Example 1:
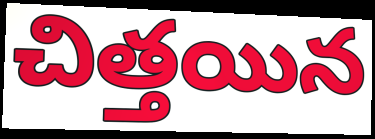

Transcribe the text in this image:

చిత్తయిన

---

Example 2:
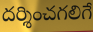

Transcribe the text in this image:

దర్శించగలిగే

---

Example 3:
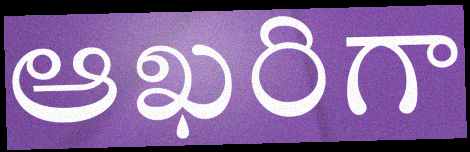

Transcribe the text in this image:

ఆఖరిగా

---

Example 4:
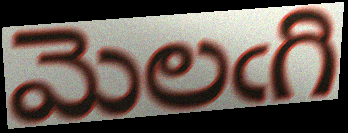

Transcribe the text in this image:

మెలఁగి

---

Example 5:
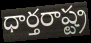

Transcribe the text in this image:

ధార్తరాష్ట్ర